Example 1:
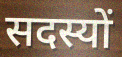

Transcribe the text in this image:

सदस्यों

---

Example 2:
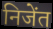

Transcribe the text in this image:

निजेंत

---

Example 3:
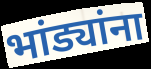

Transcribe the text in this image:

भांड्यांना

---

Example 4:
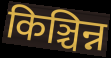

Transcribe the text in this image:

किञ्चिन्न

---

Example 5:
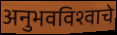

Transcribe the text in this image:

अनुभवविश्वाचे